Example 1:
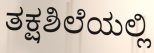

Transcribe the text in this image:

ತಕ್ಷಶಿಲೆಯಲ್ಲಿ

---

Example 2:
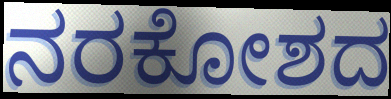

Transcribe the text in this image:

ನರಕೋಶದ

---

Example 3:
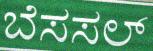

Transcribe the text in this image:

ಬೆಸಸಲ್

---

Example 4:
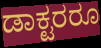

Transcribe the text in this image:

ಡಾಕ್ಟರರೂ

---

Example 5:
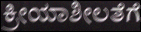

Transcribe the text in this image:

ಕ್ರೀಯಾಶೀಲತೆಗೆ